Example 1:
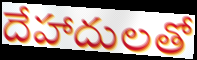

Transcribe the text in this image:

దేహాదులతో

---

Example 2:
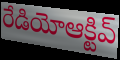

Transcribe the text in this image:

రేడియోఆక్టివ్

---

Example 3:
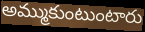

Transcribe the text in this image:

అమ్ముకుంటుంటారు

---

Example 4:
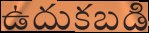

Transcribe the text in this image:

ఉదుకబడి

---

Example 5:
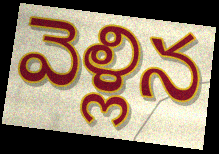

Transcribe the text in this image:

వెళ్లిన